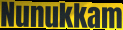
Nunukkam